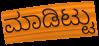
ಮಾಡಿಟ್ಟು